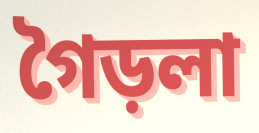
গৈড়লা